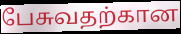
பேசுவதற்கான